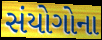
સંયોગોના